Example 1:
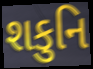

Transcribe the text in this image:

શકુનિ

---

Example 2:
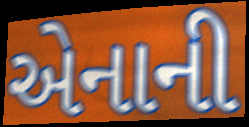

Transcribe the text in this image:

એનાની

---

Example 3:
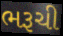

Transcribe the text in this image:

ભરૂચી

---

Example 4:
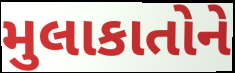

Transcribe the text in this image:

મુલાકાતોને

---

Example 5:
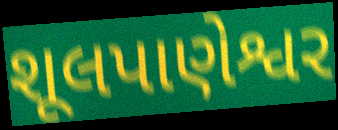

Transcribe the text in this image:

શૂલપાણેશ્વર